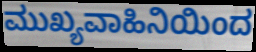
ಮುಖ್ಯವಾಹಿನಿಯಿಂದ